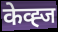
केव्ह्ज